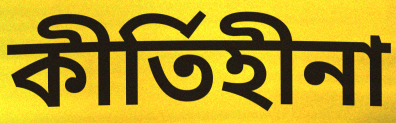
কীর্তিহীনা